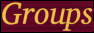
Groups